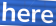
here